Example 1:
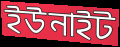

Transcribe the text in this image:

ইউনাইট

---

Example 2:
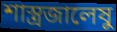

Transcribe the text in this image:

শাস্ত্রজালেষু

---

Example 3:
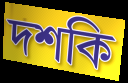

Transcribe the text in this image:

দশকি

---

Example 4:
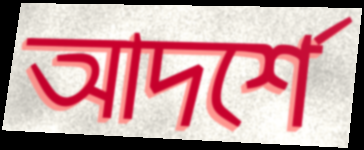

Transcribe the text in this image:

আদর্শে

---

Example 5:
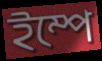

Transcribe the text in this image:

ইম্পে